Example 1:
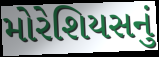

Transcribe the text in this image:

મોરેશિયસનું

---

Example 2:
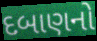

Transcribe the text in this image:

દબાણનો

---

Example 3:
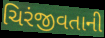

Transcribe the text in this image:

ચિરંજીવતાની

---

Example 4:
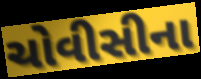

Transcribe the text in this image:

ચોવીસીના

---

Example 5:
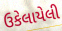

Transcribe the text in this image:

ઉકેલાયેલી